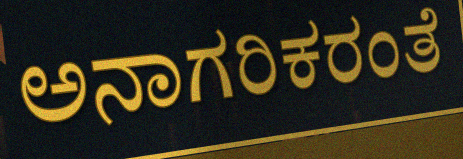
ಅನಾಗರಿಕರಂತೆ